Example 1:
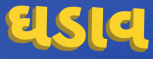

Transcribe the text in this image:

ઘડાવ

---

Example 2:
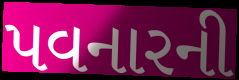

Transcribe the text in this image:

પવનારની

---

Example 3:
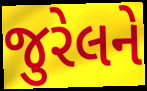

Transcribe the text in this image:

જુરેલને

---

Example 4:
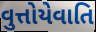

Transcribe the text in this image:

વુત્તોયેવાતિ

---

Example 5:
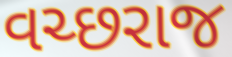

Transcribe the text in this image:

વચ્છરાજ